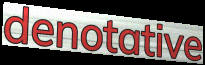
denotative